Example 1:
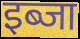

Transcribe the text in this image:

इब्जा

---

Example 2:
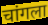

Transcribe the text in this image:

चांगला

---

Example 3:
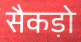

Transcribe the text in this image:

सैकड़ो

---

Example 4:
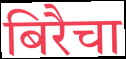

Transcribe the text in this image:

बिरैचा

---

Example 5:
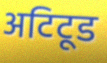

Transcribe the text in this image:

अटिटूड